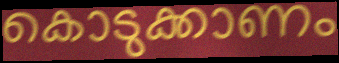
കൊടുക്കാണം